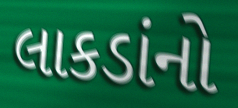
લાકડાંનો